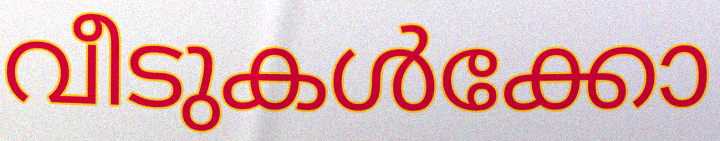
വീടുകൾക്കോ